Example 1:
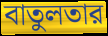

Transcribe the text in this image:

বাতুলতার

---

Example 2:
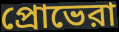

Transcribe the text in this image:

প্রোভেরা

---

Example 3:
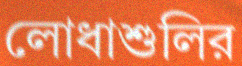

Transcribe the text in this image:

লোধাশুলির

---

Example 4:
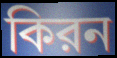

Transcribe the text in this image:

কিরন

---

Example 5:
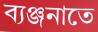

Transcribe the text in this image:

ব্যঞ্জনাতে